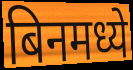
बिनमध्ये